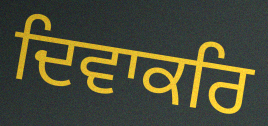
ਦਿਵਾਕਰਿ